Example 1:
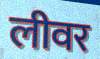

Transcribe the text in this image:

लीवर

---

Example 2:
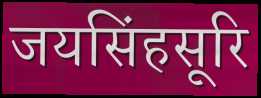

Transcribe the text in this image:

जयसिंहसूरि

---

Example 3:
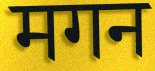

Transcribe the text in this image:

मगन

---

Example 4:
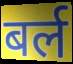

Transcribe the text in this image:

बर्ल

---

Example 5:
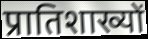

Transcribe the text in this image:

प्रातिशाख्यों